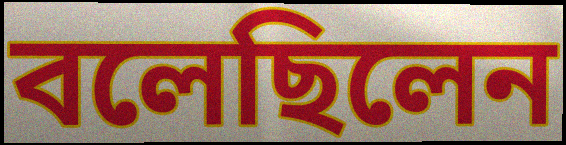
বলেছিলেন